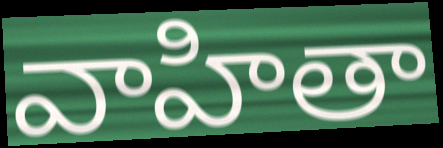
వాహితా